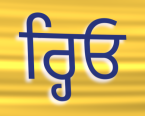
ਰ੍ਹਿਓ